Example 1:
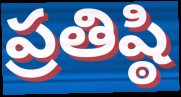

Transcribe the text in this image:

ప్రతిష్ఠి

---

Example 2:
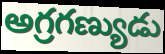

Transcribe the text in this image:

అగ్రగణ్యుడు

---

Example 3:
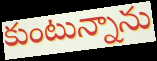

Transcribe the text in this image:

కుంటున్నాను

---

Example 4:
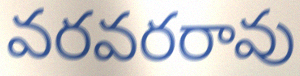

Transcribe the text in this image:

వరవరరావు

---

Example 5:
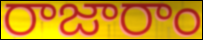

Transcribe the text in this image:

రాజారాం